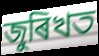
জুৰিখত